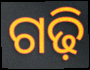
ଗଢ଼ି